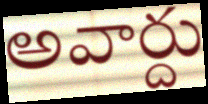
అవార్దు